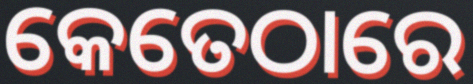
କେତେଠାରେ